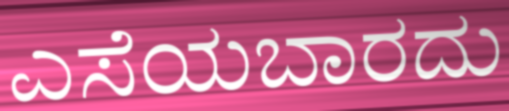
ಎಸೆಯಬಾರದು